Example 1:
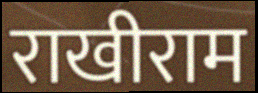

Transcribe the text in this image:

राखीराम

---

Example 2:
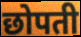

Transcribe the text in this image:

छोपती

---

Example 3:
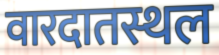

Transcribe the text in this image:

वारदातस्थल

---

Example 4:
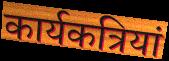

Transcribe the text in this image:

कार्यकत्रियां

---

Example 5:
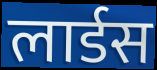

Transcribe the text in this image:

लार्डस